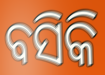
ବସିକି